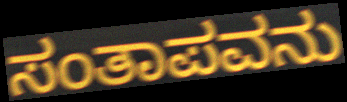
ಸಂತಾಪವನು